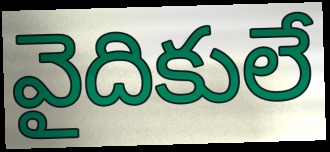
వైదికులే